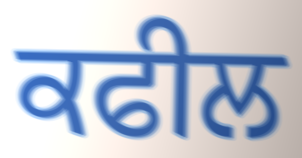
ਕਫੀਲ